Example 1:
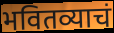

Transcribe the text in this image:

भवितव्याचं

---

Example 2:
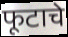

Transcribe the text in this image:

फूटाचे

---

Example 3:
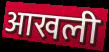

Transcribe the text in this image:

आखली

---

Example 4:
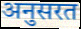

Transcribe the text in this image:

अनुसरत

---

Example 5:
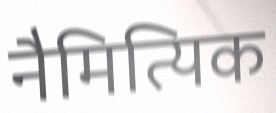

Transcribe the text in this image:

नैमित्यिक